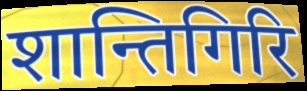
शान्तिगिरि